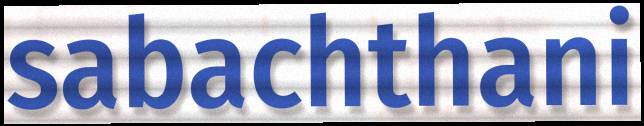
sabachthani